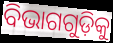
ବିଭାଗଗୁଡ଼ିକୁ